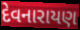
દેવનારાયણ